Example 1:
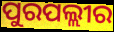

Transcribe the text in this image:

ପୁରପଲ୍ଲୀର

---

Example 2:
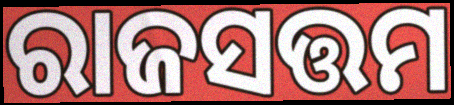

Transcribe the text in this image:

ରାଜସତ୍ତମ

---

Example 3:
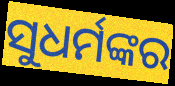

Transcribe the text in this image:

ସୁଧର୍ମଙ୍କର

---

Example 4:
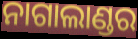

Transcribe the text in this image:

ନାଗାଲାଣ୍ଡର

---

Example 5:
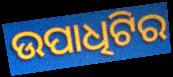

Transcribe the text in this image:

ଉପାଧିଟିର